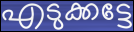
എടുക്കട്ടേ